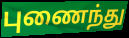
புணைந்து